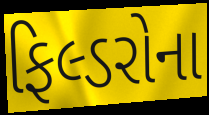
ફિલ્ડરોના